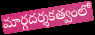
మార్గదర్శకత్వంలో